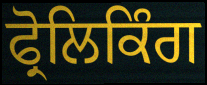
ਫ੍ਰੋਲਿਕਿੰਗ